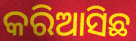
କରିଆସିଛ